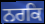
ਨਰਕਿ